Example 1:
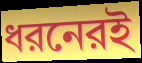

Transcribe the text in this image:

ধরনেরই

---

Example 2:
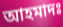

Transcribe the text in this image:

আহমাদঃ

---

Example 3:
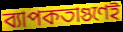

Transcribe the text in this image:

ব্যাপকতাগুণেই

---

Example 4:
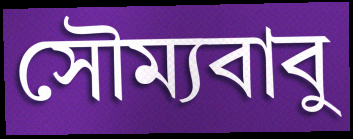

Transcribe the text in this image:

সৌম্যবাবু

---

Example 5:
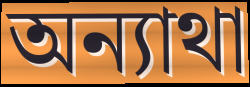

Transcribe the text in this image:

অন্যাথা